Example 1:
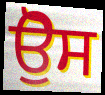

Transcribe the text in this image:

ਉੋਸ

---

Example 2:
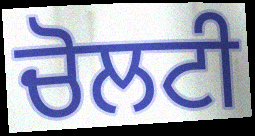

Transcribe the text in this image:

ਚੋਲਟੀ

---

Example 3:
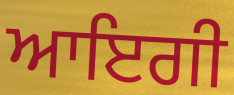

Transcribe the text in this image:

ਆਇਗੀ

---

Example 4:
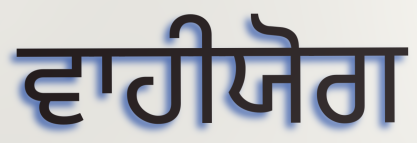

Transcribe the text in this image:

ਵਾਹੀਯੋਗ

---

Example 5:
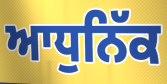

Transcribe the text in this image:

ਆਧੁਨਿੱਕ